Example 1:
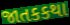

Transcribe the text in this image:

જાતકકથા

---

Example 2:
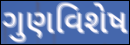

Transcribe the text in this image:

ગુણવિશેષ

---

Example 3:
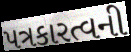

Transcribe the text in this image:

પત્રકારત્વની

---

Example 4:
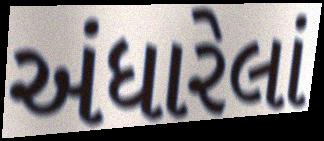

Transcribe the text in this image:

અંધારેલાં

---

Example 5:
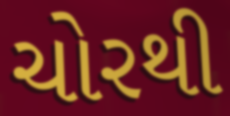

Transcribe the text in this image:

ચોરથી